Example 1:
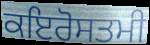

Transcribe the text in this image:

ਕਇਰੋਸਤਮੀ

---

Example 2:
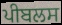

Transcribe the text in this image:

ਪੀਬਲਸ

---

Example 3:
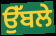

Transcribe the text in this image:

ਉੱਬਲੇ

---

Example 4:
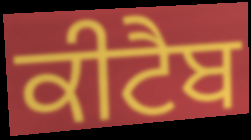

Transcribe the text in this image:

ਕੀਟੈਬ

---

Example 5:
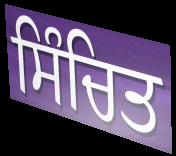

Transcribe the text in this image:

ਸਿੰਚਿਤ